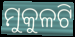
ମୁକୁଳଟି